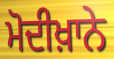
ਮੋਦੀਖ਼ਾਨੇ